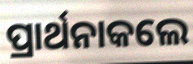
ପ୍ରାର୍ଥନାକଲେ